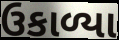
ઉકાળ્યા